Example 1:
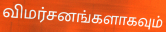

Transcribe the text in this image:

விமர்சனங்களாகவும்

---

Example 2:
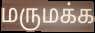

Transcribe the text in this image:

மருமக்க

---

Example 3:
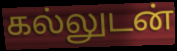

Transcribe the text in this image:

கல்லுடன்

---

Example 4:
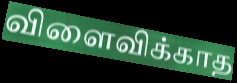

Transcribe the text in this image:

விளைவிக்காத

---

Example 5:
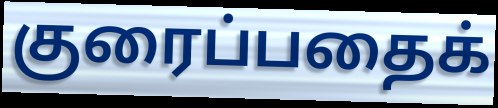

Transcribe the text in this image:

குரைப்பதைக்